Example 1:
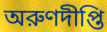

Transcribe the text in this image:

অরুণদীপ্তি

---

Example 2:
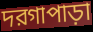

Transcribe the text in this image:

দরগাপাড়া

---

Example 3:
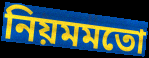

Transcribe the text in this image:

নিয়মমতো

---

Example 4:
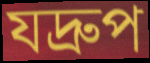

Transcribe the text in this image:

যদ্রুপ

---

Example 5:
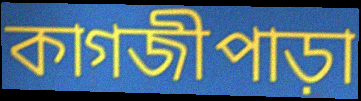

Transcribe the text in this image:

কাগজীপাড়া